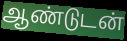
ஆண்டுடன்